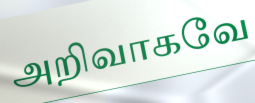
அறிவாகவே